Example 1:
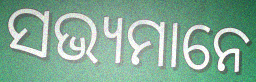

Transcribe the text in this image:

ସଭ୍ୟମାନେ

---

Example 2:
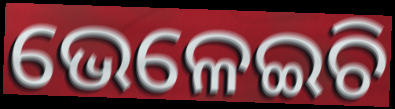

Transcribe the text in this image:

ଭେଳେଇଚି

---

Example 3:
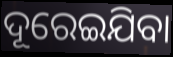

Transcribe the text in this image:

ଦୂରେଇଯିବା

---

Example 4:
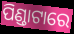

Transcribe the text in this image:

ପିଣ୍ଡାଟାରେ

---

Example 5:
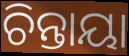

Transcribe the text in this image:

ଚିନ୍ତାୟା